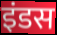
इंडस